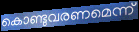
കൊണ്ടുവരണമെന്ന്